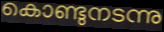
കൊണ്ടുനടന്നു